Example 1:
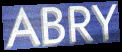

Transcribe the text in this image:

ABRY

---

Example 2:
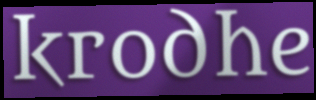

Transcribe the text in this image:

krodhe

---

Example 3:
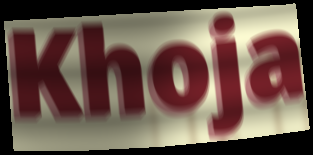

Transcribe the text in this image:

Khoja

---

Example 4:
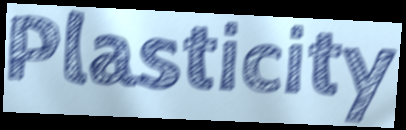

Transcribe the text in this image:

Plasticity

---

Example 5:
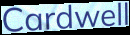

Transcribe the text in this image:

Cardwell